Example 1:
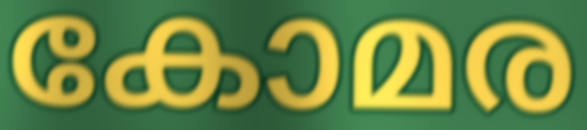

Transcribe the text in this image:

കോമര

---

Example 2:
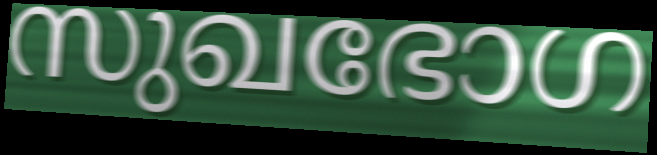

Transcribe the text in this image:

സുഖഭോഗ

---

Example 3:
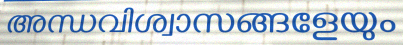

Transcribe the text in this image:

അന്ധവിശ്വാസങ്ങളേയും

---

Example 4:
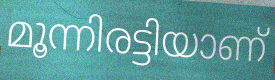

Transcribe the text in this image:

മൂന്നിരട്ടിയാണ്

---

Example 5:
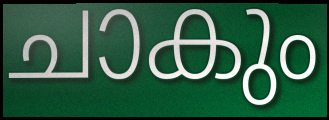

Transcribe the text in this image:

ചാകും